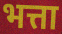
भत्ता